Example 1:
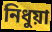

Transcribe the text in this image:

নিধুয়া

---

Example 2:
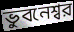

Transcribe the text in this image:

ভুবনেশ্বর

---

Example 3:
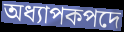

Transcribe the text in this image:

অধ্যাপকপদে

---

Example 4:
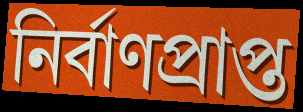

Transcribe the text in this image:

নির্বাণপ্রাপ্ত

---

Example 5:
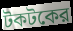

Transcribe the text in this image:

টকটকের